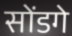
सोंडगे